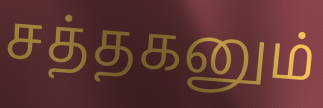
சத்தகனும்